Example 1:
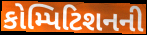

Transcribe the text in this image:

કોમ્પિટિશનની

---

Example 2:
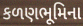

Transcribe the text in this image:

કળણભૂમિના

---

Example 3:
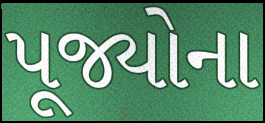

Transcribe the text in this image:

પૂજ્યોના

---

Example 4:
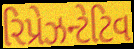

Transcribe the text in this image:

રિપ્રેઝન્ટેટિવ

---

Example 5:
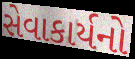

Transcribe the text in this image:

સેવાકાર્યનો